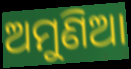
ଅମୁଣିଆ